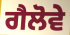
ਗੈਲੋਵੇ